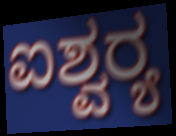
ಐಶ್ವರ‍್ಯ